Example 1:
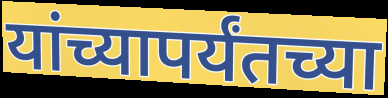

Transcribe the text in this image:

यांच्यापर्यंतच्या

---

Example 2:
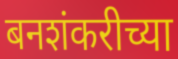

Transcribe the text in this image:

बनशंकरीच्या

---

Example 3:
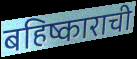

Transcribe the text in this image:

बहिष्काराची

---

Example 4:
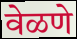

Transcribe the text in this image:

वेळणे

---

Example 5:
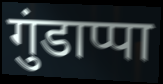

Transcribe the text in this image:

गुंडाप्पा